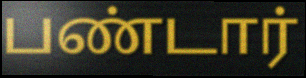
பண்டார்